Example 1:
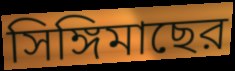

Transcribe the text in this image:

সিঙ্গিমাছের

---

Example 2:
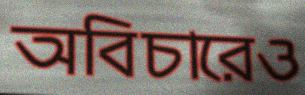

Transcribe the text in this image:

অবিচারেও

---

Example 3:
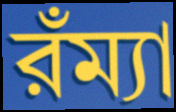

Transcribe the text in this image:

রঁম্যা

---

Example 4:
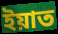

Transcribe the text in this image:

ইয়াত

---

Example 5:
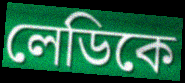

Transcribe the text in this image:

লেডিকে